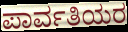
ಪಾರ್ವತಿಯರ